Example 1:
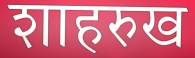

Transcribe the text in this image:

शाहरुख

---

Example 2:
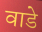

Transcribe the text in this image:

वाडे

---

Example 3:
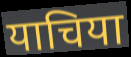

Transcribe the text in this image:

याचिया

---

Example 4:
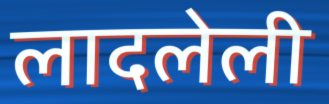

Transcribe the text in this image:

लादलेली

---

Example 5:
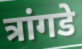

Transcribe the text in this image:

त्रांगडे